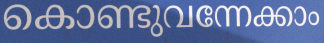
കൊണ്ടുവന്നേക്കാം